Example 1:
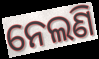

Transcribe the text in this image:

ନେଲଣି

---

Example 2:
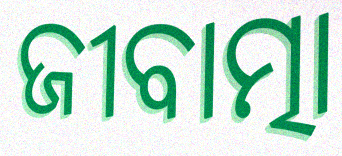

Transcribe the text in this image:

ଜୀବାତ୍ମା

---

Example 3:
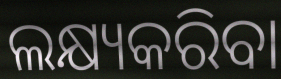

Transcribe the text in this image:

ଲକ୍ଷ୍ୟକରିବା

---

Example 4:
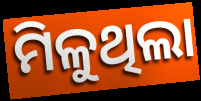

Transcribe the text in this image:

ମିଳୁଥିଲା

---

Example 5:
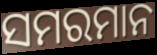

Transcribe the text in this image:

ସମରମାନ